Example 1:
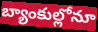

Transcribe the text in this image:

బ్యాంకుల్లోనూ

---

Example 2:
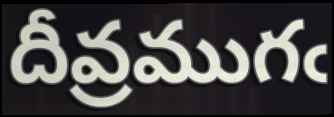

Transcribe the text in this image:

దీవ్రముగఁ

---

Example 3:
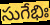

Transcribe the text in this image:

సుగేభిః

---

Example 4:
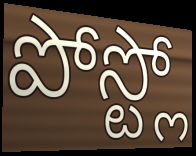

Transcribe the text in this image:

పోస్ట్లో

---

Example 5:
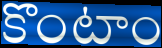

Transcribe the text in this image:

కొంటాం